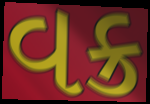
વક્ર